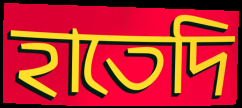
হাতেদি